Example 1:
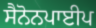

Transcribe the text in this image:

ਸੈਨੋਨਪਾਈਪ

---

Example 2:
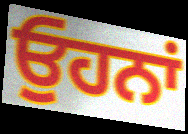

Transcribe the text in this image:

ਓੁਹਨਾਂ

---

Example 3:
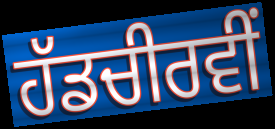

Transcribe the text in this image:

ਹੱਡਚੀਰਵੀਂ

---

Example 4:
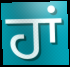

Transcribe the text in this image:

ਹਾਂ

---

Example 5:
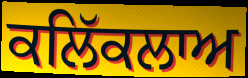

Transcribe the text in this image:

ਕਲਿੱਕਲਾਅ